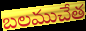
బలముచేత